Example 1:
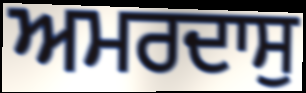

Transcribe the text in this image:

ਅਮਰਦਾਸੁ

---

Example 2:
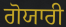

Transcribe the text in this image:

ਗੋਯਾਰੀ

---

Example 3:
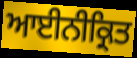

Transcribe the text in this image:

ਆਈਨੀਕ੍ਰਿਤ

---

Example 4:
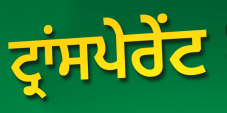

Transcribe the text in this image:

ਟ੍ਰਾਂਸਪੇਰੇਂਟ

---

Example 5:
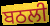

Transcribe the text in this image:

ਬਠਲੀ